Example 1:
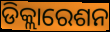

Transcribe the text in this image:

ଡିକ୍ଲାରେଶନ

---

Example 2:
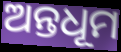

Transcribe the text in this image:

ଅନ୍ତଧୂମ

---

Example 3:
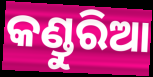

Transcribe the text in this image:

କଣ୍ଡୁରିଆ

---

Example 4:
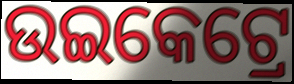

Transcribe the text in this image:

ଉଇକେଟ୍ରେ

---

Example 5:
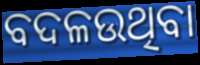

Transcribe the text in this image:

ବଦଳଉଥିବା